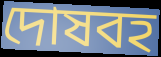
দোষবহ